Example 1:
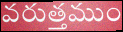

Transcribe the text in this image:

వరుత్తముం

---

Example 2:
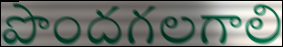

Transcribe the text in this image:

పొందగలగాలి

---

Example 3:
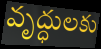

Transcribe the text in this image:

వృద్ధులకు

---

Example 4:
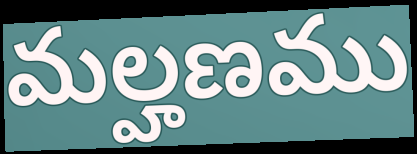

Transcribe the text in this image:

మల్హణము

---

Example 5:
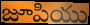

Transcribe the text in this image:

జూపియు